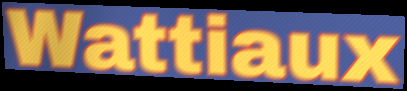
Wattiaux